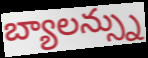
బ్యాలన్స్ను